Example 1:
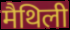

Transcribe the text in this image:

मैथिली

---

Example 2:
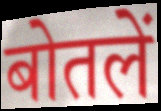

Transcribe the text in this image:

बोतलें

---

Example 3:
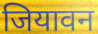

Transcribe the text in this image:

जियावन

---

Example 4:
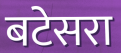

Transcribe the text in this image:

बटेसरा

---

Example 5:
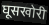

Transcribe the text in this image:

घूसखोरी